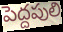
పెద్దపులి